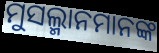
ମୁସଲ୍ମାନମାନଙ୍କ